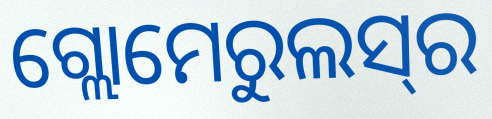
ଗ୍ଲୋମେରୁଲସ୍‌ର